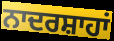
ਨਾਦਰਸ਼ਾਹਾਂ